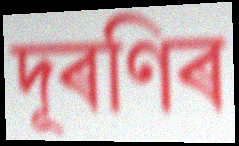
দূৰণিৰ